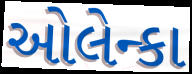
ઓલેન્કા